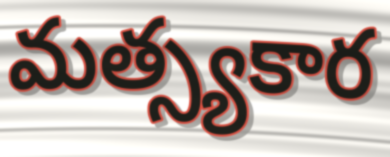
మత్స్యకార